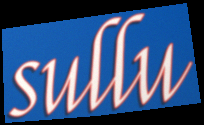
sullu